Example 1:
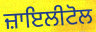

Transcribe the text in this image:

ਜ਼ਾਇਲੀਟੋਲ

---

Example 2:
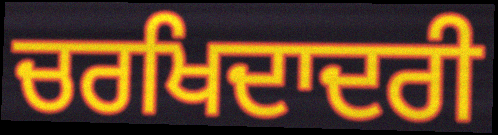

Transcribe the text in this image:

ਚਰਖਿਦਾਦਰੀ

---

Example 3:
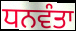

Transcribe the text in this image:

ਧਨਵੰਤਾ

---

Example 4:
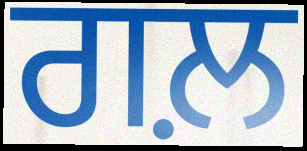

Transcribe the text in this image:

ਗਲ਼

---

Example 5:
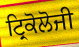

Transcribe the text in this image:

ਟ੍ਰਿਕੋਲੋਜੀ